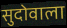
सुदोवाला